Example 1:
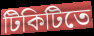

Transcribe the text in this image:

টিকিটিতে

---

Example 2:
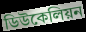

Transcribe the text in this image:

ডিউকেলিয়ন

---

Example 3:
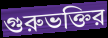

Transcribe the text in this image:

গুরুভক্তির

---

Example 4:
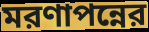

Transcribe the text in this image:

মরণাপন্নের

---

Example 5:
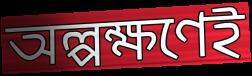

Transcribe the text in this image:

অল্পক্ষণেই